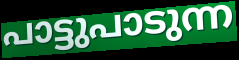
പാട്ടുപാടുന്ന